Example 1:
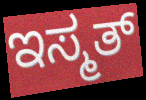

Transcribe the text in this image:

ಇಸ್ಮತ್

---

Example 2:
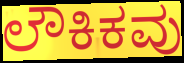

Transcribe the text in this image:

ಲೌಕಿಕವು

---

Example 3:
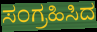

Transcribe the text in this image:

ಸಂಗ್ರಹಿಸಿದ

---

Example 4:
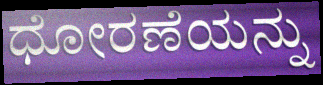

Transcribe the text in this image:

ಧೋರಣೆಯನ್ನು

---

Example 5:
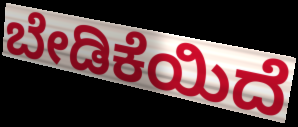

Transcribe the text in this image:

ಬೇಡಿಕೆಯಿದೆ